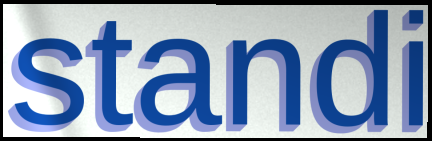
standi